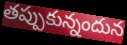
తప్పుకున్నందున